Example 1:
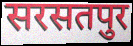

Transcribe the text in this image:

सरसतपुर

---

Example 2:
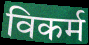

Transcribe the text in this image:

विकर्म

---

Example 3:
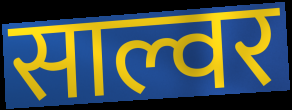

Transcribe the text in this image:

साल्वर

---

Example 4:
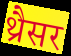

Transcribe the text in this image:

थ्रैसर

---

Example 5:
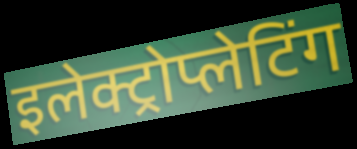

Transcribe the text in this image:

इलेक्ट्रोप्लेटिंग